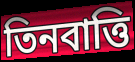
তিনবাত্তি